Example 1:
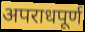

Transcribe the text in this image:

अपराधपूर्ण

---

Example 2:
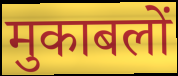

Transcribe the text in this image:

मुकाबलों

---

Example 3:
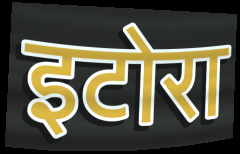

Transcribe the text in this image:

इटोरा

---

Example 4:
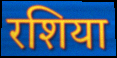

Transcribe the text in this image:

रशिया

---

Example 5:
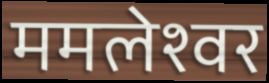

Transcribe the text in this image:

ममलेश्वर